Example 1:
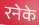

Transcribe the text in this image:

रनेके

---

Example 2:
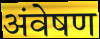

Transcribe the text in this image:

अंवेषण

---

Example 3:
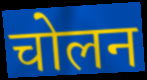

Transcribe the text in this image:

चोलन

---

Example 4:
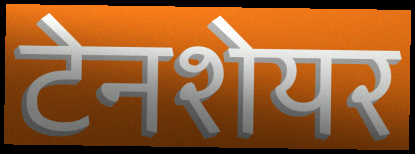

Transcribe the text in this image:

टेनशेयर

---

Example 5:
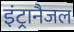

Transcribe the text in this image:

इंट्रानैजल